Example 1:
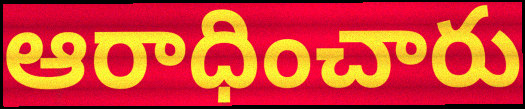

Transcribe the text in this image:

ఆరాధించారు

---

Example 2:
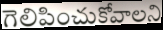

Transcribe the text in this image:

గెలిపించుకోవాలని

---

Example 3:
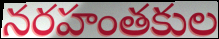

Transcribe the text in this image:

నరహంతకుల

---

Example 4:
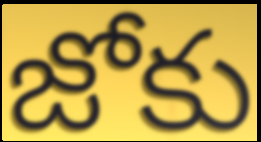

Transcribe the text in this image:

జోకు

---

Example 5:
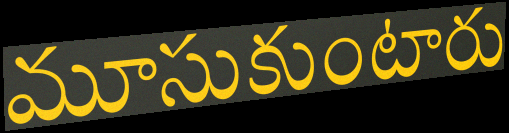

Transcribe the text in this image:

మూసుకుంటారు